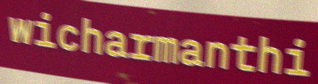
wicharmanthi